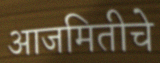
आजमितीचे